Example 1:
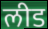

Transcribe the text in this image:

लीड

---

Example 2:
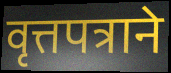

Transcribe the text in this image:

वृत्तपत्राने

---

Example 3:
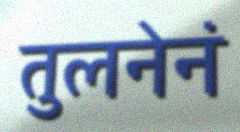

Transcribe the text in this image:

तुलनेनं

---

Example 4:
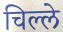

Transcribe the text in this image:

चिल्ले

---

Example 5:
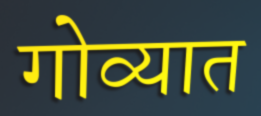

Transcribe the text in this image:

गोव्यात